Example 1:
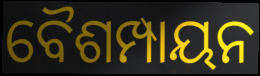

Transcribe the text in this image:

ବୈଶମ୍ପାୟନ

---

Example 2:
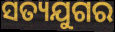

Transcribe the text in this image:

ସତ୍ୟଯୁଗର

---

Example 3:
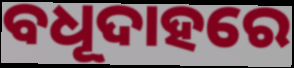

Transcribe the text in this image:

ବଧୂଦାହରେ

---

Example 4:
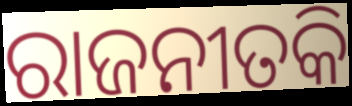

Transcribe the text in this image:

ରାଜନୀତକି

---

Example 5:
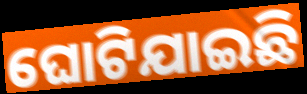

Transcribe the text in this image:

ଘୋଟିଯାଇଛି